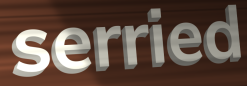
serried